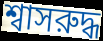
শ্বাসরুদ্ধ